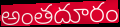
అంతదూరం